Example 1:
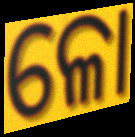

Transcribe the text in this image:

ଳୋ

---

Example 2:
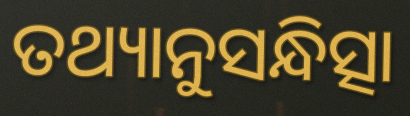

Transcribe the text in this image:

ତଥ୍ୟାନୁସନ୍ଧିତ୍ସା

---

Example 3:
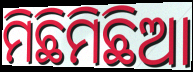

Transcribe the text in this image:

ମିଛିମିଛିଆ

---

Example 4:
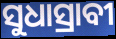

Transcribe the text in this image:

ସୁଧାସ୍ରାବୀ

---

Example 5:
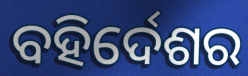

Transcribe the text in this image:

ବହିର୍ଦେଶର